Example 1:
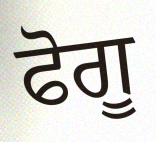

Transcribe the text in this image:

ਫੋਗੂ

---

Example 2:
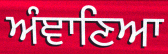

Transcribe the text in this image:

ਅੰਞਾਣਿਆ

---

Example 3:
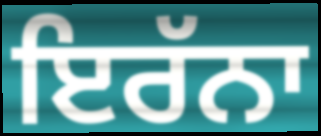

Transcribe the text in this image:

ਇਰੱਨਾ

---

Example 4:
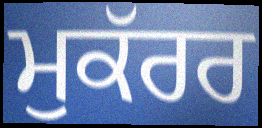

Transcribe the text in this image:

ਮੁਕੱਰਰ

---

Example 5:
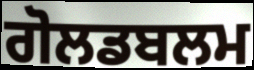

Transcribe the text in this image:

ਗੋਲਡਬਲਮ